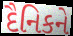
દૈનિકને